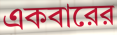
একবারের